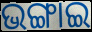
ଭଙ୍ଗାଇ